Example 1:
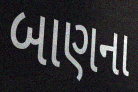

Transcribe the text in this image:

બાણના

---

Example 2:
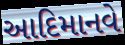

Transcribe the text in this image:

આદિમાનવે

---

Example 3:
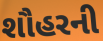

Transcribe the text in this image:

શૌહરની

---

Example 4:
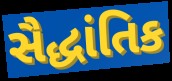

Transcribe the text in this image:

સૈદ્ધાંતિક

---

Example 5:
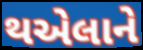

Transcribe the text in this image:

થએલાને